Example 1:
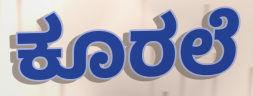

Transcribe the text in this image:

ಕೂರಲೆ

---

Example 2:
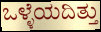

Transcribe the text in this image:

ಒಳ್ಳೆಯದಿತ್ತು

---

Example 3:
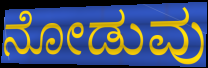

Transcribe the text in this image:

ನೋಡುವು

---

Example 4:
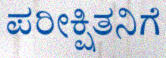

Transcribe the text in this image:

ಪರೀಕ್ಷಿತನಿಗೆ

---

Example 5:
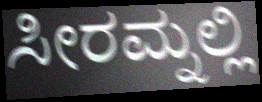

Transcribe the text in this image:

ಸೀರಮ್ನಲ್ಲಿ